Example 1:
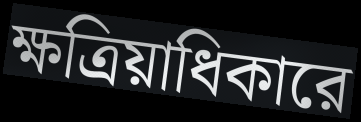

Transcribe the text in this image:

ক্ষত্রিয়াধিকারে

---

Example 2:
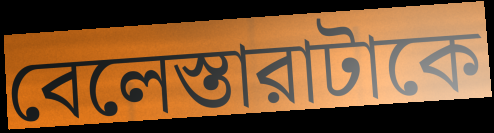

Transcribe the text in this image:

বেলেস্তারাটাকে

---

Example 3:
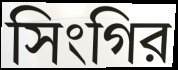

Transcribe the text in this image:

সিংগির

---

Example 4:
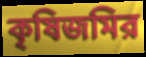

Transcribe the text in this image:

কৃষিজমির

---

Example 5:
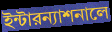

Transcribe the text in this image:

ইন্টারন্যাশনালে